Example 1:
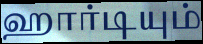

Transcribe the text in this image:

ஹார்டியும்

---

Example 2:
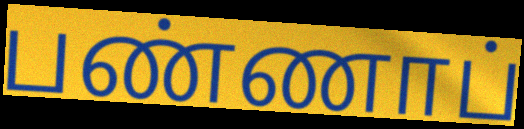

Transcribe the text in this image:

பண்ணாப்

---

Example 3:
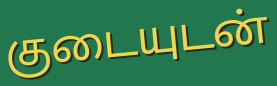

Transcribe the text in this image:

குடையுடன்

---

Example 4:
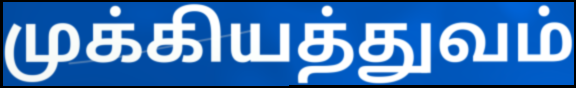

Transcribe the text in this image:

முக்கியத்துவம்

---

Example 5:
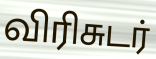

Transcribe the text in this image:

விரிசுடர்